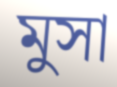
মুসা